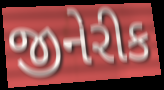
જીનેરીક